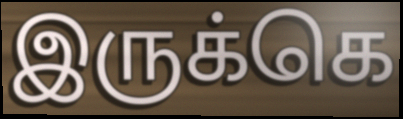
இருக்கெ